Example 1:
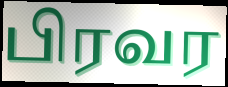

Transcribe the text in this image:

பிரவர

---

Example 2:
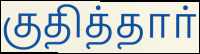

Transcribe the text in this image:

குதித்தார்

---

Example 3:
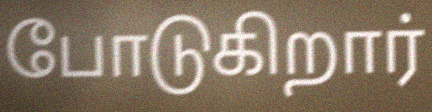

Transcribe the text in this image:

போடுகிறார்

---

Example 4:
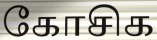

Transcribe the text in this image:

கோசிக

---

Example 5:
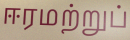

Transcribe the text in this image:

ஈரமற்றுப்